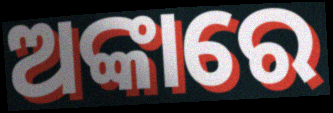
ଅଙ୍କାରେ